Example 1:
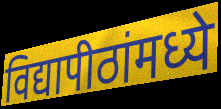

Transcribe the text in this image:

विद्यापीठांमध्ये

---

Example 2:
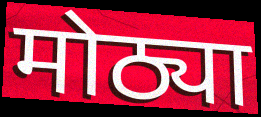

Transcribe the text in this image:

मोठ्या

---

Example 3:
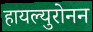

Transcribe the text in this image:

हायल्युरोनन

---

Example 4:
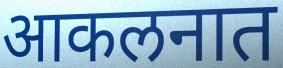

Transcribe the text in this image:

आकलनात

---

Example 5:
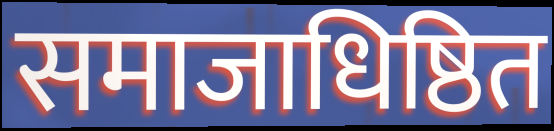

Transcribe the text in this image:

समाजाधिष्ठित